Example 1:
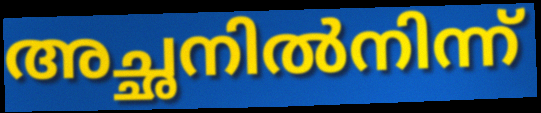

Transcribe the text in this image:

അച്ഛനിൽനിന്ന്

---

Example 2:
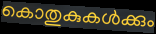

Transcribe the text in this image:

കൊതുകുകൾക്കും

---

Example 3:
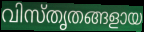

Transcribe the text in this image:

വിസ്തൃതങ്ങളായ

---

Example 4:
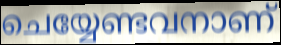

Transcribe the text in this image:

ചെയ്യേണ്ടവനാണ്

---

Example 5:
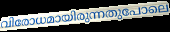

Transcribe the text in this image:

വിരോധമായിരുന്നതുപോലെ